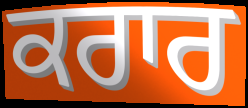
ਕਰਾਰ